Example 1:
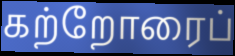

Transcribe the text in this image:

கற்றோரைப்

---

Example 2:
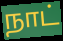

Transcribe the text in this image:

நாட்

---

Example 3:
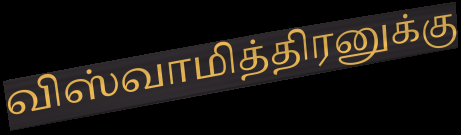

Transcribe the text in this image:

விஸ்வாமித்திரனுக்கு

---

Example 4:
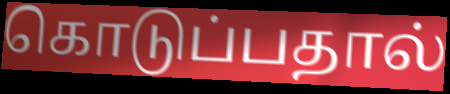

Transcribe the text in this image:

கொடுப்பதால்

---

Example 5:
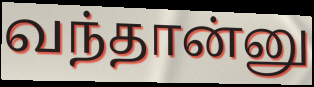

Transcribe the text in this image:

வந்தான்னு